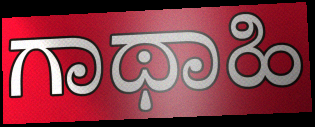
ಗಾಥಾಹಿ